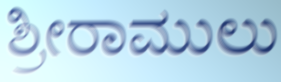
ಶ್ರೀರಾಮುಲು